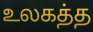
உலகத்த